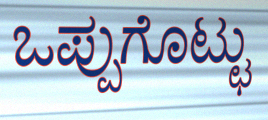
ಒಪ್ಪುಗೊಟ್ಟು